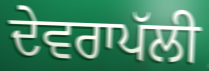
ਦੇਵਰਾਪੱਲੀ